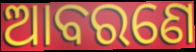
ଆବରଣେ